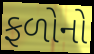
ફળોનો